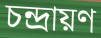
চন্দ্রায়ণ